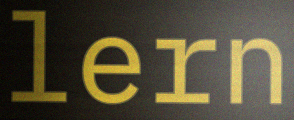
lern